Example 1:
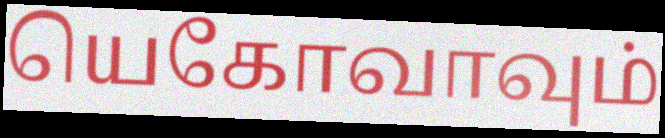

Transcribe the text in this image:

யெகோவாவும்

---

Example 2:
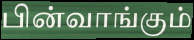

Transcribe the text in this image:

பின்வாங்கும்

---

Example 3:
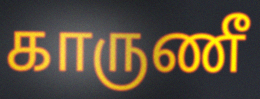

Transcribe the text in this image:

காருணீ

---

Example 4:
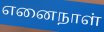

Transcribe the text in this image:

எனைநாள்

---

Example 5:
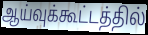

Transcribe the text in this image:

ஆய்வுக்கூட்டத்தில்